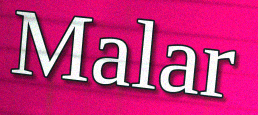
Malar